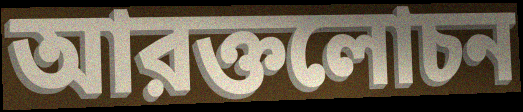
আরক্তলোচন